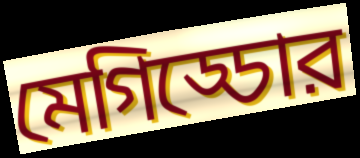
মেগিড্ডোর